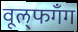
वूल्फगँग